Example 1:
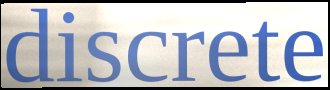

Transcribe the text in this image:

discrete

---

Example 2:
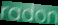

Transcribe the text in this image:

radon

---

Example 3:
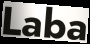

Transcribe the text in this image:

Laba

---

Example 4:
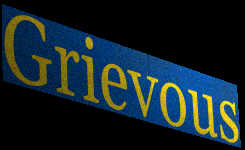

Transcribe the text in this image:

Grievous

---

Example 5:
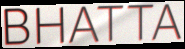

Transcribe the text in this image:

BHATTA